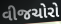
વીજચોરો